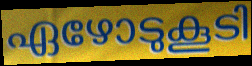
ഏഴോടുകൂടി